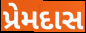
પ્રેમદાસ